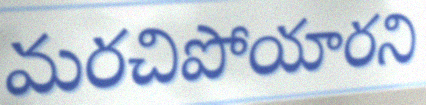
మరచిపోయారని